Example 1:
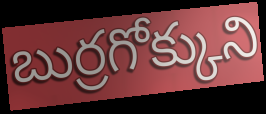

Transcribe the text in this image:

బుర్రగోక్కుని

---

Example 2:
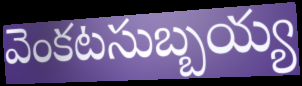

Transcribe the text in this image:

వెంకటసుబ్బయ్య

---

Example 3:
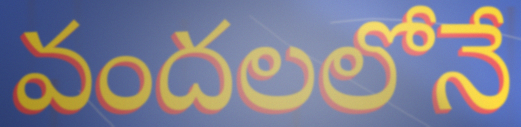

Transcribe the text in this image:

వందలలోనే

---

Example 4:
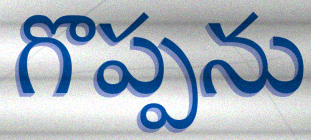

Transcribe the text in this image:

గొప్పను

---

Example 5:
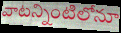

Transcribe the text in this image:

వాటన్నింటిలోనూ